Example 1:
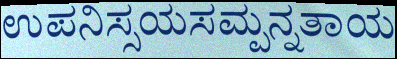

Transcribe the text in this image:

ಉಪನಿಸ್ಸಯಸಮ್ಪನ್ನತಾಯ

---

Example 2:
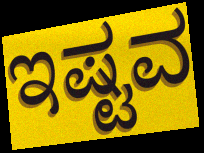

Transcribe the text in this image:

ಇಷ್ಟವ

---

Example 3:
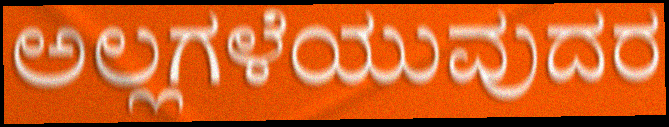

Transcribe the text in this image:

ಅಲ್ಲಗಳೆಯುವುದರ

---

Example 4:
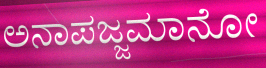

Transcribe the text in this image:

ಅನಾಪಜ್ಜಮಾನೋ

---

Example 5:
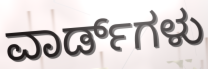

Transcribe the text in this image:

ವಾರ್ಡ್‌ಗಳು